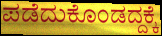
ಪಡೆದುಕೊಂಡದ್ದಕ್ಕೆ